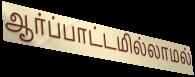
ஆர்ப்பாட்டமில்லாமல்